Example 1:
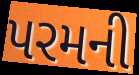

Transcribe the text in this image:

પરમની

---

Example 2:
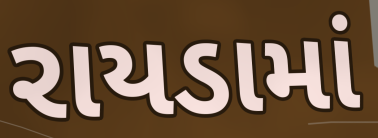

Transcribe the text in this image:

રાયડામાં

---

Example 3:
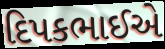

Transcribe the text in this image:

દિપકભાઈએ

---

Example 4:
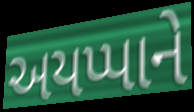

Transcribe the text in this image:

અયપ્પાને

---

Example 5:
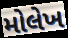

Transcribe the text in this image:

મોલેખ